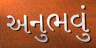
અનુભવું